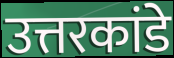
उत्तरकांडे